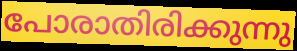
പോരാതിരിക്കുന്നു